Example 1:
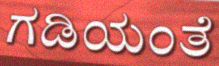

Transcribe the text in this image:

ಗಡಿಯಂತೆ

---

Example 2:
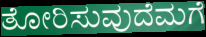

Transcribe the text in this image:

ತೋರಿಸುವುದೆಮಗೆ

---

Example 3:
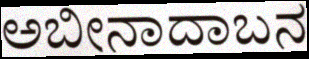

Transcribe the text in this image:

ಅಬೀನಾದಾಬನ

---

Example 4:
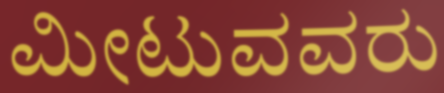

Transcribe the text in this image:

ಮೀಟುವವರು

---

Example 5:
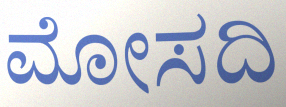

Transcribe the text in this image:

ಮೋಸದಿ